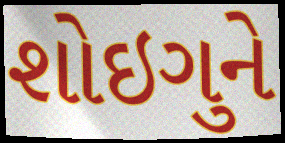
શોઇગુને